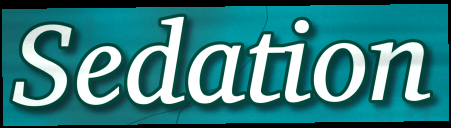
Sedation